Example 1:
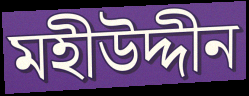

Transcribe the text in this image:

মহীউদ্দীন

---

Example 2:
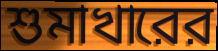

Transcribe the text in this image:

শুমাখারের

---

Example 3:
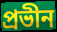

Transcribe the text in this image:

প্রভীন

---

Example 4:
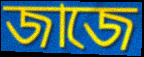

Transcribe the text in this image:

জাজে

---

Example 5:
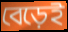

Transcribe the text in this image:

বেড়েই